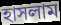
হাসলাম